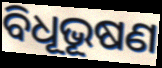
ବିଧୂଭୂଷଣ